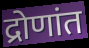
द्रोणांत